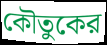
কৌতুকের